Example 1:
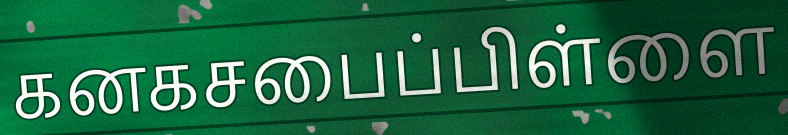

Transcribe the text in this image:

கனகசபைப்பிள்ளை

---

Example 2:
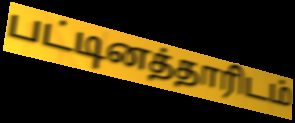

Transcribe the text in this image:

பட்டினத்தாரிடம்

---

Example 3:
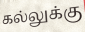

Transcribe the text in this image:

கல்லுக்கு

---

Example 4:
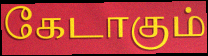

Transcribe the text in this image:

கேடாகும்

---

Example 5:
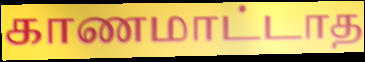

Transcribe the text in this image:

காணமாட்டாத